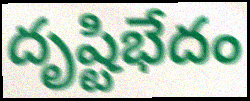
దృష్టిభేదం